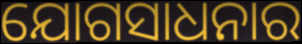
ଯୋଗସାଧନାର